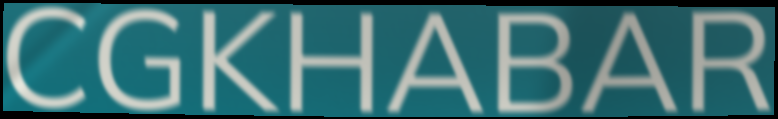
CGKHABAR